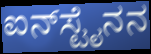
ಐನ್‌ಸ್ಟೈನನ